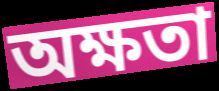
অক্ষতা